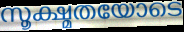
സൂക്ഷ്മതയോടെ